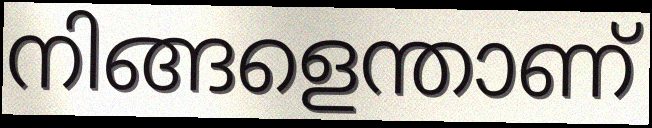
നിങ്ങളെന്താണ്